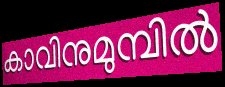
കാവിനുമുമ്പിൽ